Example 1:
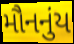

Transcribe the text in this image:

મૌનનુંય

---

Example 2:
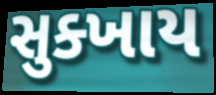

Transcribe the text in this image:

સુક્ખાય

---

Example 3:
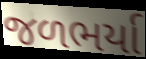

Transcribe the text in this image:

જળભર્યા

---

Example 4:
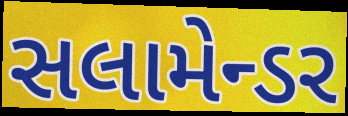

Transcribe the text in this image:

સલામેન્ડર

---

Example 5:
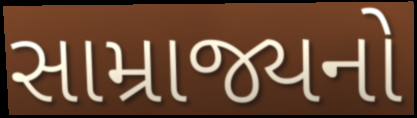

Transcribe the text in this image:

સામ્રાજ્યનો